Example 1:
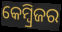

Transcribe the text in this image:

କେମ୍ୱ୍ରିଜର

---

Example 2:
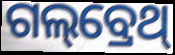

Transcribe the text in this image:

ଗଲ୍‌ବ୍ରେଥ୍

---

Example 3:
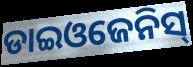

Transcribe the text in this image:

ଡାଇଓଜେନିସ୍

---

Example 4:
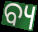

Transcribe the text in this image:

ବ୍ୟ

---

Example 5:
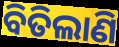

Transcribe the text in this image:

ବିତିଲାଣି